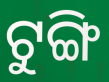
ଟୁଙ୍ଗି